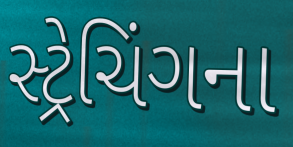
સ્ટ્રેચિંગના